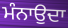
ਮੰਨਾਉਦਾ